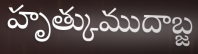
హృత్కుముదాబ్జ